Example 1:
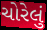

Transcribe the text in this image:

ચોરેલું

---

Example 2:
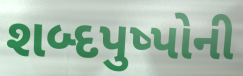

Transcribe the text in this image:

શબ્દપુષ્પોની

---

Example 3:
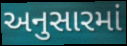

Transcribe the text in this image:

અનુસારમાં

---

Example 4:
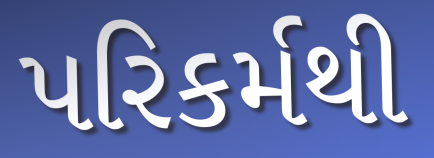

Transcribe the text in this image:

પરિકર્મથી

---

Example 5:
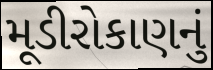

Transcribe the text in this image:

મૂડીરોકાણનું